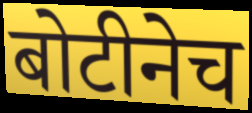
बोटीनेच